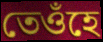
তেওঁহে